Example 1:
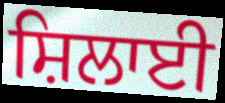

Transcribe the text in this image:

ਸ਼ਿਲਾਈ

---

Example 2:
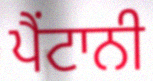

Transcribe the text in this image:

ਪੈਂਟਾਨੀ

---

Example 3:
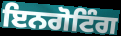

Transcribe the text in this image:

ਇਨਗੋਟਿੰਗ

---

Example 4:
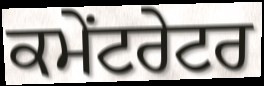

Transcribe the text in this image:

ਕਮੇਂਟਰੇਟਰ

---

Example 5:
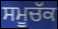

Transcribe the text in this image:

ਸਮੂਚੱਕ